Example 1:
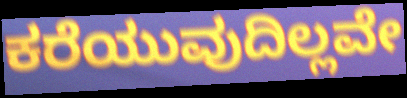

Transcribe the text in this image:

ಕರೆಯುವುದಿಲ್ಲವೇ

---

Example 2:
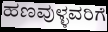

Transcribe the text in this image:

ಹಣವುಳ್ಳವರಿಗೆ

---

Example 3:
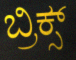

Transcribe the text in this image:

ಬ್ರಿಕ್ಸ್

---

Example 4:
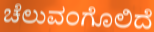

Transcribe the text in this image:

ಚೆಲುವಂಗೊಲಿದೆ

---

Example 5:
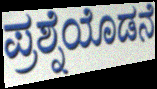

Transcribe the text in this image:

ಪ್ರಶ್ನೆಯೊಡನೆ